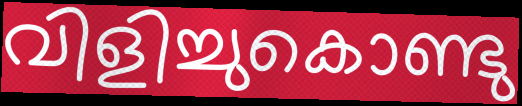
വിളിച്ചുകൊണ്ടു